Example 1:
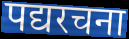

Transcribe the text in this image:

पद्यरचना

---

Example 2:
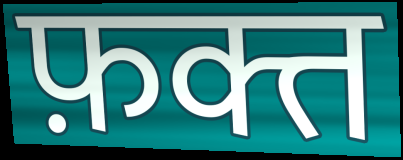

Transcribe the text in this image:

फ़क्त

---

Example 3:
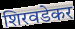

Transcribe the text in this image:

शिरवडेकर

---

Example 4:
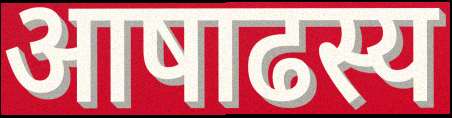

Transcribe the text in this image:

आषाढस्य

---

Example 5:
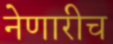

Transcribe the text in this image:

नेणारीच